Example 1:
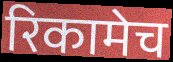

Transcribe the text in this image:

रिकामेच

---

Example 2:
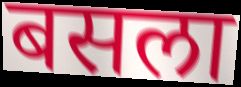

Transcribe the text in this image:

बसला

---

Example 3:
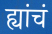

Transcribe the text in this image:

ह्यांचं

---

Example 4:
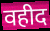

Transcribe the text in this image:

वहीद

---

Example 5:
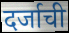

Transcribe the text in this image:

दर्जाची